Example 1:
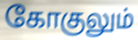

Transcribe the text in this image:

கோகுலும்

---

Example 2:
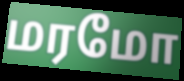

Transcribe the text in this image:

மரமோ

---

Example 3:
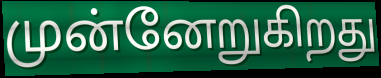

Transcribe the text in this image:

முன்னேறுகிறது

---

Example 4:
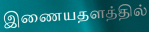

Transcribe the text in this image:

இணையதளத்தில்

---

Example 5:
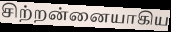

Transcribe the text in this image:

சிற்றன்னையாகிய